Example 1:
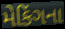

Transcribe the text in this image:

મેકિંગના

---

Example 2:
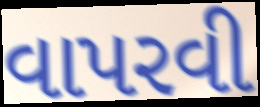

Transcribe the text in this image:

વાપરવી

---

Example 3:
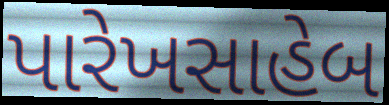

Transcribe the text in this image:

પારેખસાહેબ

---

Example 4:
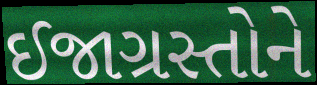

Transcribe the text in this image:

ઈજાગ્રસ્તોને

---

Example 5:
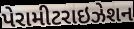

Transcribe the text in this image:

પેરામીટરાઇઝેશન